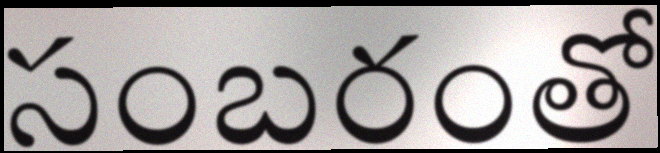
సంబరంతో